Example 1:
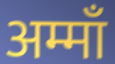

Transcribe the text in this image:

अम्माँ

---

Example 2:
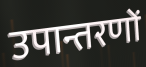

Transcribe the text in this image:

उपान्तरणों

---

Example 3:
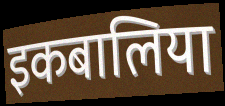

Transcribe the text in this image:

इकबालिया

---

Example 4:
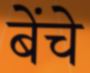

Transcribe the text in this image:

बेंचे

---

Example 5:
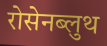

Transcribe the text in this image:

रोसेनब्लुथ